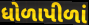
ધોળાપીળાં